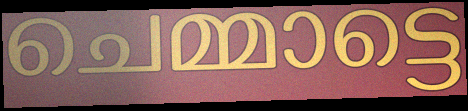
ചെമ്മാട്ടെ